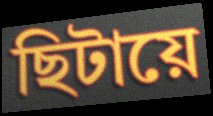
ছিটায়ে